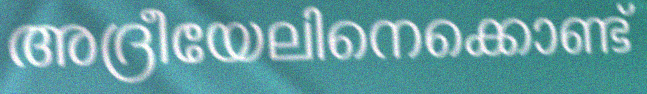
അദ്രീയേലിനെക്കൊണ്ട്